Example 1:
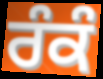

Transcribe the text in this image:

ਰੰਕੰ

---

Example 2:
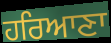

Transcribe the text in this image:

ਹਰਿਆਣਾ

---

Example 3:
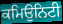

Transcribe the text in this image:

ਕਮਿਉਨਿਟੀ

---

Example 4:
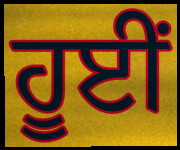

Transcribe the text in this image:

ਹੂਈਂ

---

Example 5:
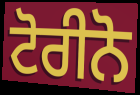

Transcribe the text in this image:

ਟੋਰੀਨੋ